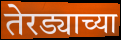
तेरड्याच्या